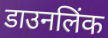
डाउनलिंक